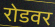
रोडवर